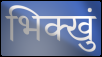
भिक्खुं